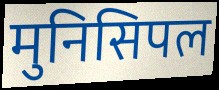
मुनिसिपल